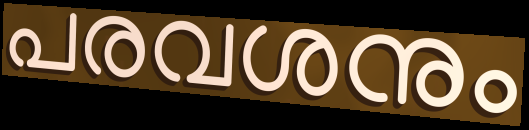
പരവശനും